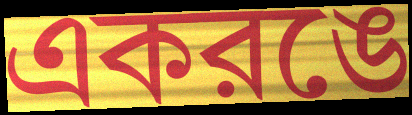
একরঙে